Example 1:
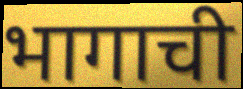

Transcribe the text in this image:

भागाची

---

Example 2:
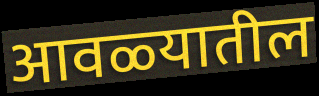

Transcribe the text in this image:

आवळ्यातील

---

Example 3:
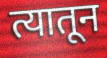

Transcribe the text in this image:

त्यातून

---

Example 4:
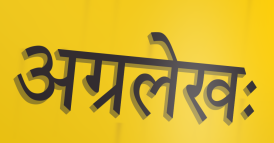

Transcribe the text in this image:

अग्रलेखः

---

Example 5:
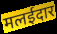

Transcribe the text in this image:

मलईदार